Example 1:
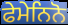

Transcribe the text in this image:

ਫੇਮੇਨਿਨੋ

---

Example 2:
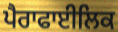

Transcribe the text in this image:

ਪੈਰਾਫਾਈਲਿਕ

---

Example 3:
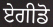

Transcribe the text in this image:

ਏਗੀਡੋ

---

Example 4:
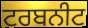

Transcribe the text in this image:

ਟਰਬਨੀਟ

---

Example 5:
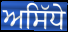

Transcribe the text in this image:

ਅਸਿੱਧੇ